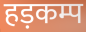
हड़कम्‍प